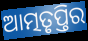
ଆତ୍ମତୃପ୍ତିର